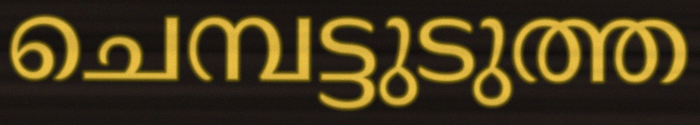
ചെമ്പട്ടുടുത്ത